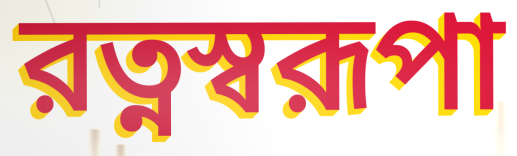
রত্নস্বরূপা